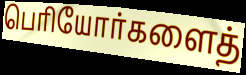
பெரியோர்களைத்